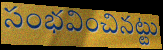
సంభవించినట్టు